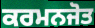
ਕਰਮਨਜੋਤ